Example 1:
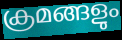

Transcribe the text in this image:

ക്രമങ്ങളും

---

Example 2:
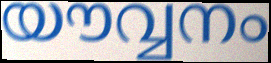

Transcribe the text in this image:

യൗവ്വനം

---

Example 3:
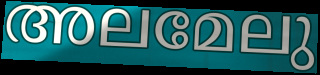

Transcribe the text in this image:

അലമേലു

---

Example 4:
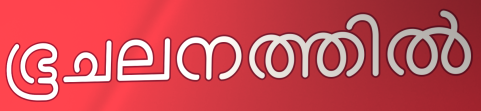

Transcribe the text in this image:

ഭൂചലനത്തിൽ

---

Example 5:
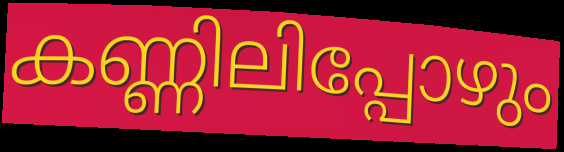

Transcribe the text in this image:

കണ്ണിലിപ്പോഴും